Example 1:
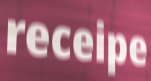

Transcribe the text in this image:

receipe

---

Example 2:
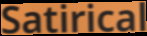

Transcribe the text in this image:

Satirical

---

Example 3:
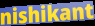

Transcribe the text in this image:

nishikant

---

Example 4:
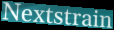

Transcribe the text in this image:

Nextstrain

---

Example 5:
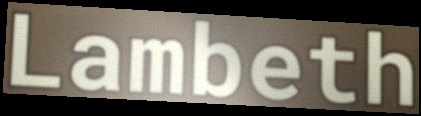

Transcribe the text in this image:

Lambeth